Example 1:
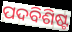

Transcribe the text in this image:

ପଦବିଶିଷ୍ଟ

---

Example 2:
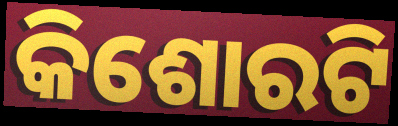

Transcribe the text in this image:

କିଶୋରଟି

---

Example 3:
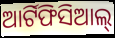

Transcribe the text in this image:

ଆର୍ଟିଫିସିଆଲ୍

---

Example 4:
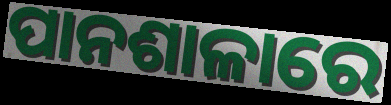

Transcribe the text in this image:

ପାନଶାଳାରେ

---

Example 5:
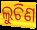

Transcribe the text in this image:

ଲୁଚିଣ